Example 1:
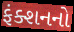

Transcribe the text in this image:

ફંક્શનનો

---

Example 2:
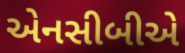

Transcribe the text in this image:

એનસીબીએ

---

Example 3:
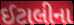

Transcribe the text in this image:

ઈટાલીના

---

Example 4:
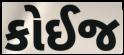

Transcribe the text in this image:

કોઈજ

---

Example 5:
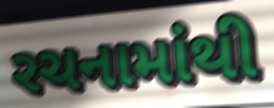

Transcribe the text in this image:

રચનામાંથી